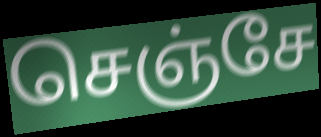
செஞ்சே